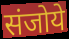
संजोये